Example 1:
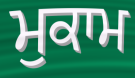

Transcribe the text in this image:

ਮੁਕਾਮ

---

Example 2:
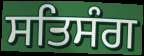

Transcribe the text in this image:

ਸਤਿਸੰਗ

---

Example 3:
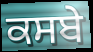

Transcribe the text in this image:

ਕਸਬੇ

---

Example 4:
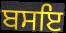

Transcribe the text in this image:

ਬਸਇ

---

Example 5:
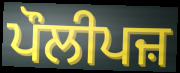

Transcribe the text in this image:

ਪੌਲੀਪਜ਼